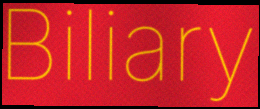
Biliary